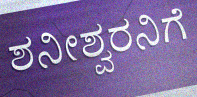
ಶನೀಶ್ವರನಿಗೆ